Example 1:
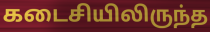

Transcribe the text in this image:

கடைசியிலிருந்த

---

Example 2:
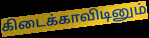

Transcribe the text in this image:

கிடைக்காவிடினும்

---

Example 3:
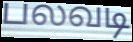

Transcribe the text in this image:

பலவடி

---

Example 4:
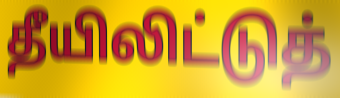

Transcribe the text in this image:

தீயிலிட்டுத்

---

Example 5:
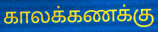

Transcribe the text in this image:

காலக்கணக்கு